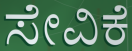
ಸೇವಿಕೆ